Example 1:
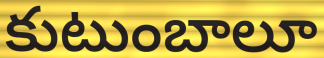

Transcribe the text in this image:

కుటుంబాలూ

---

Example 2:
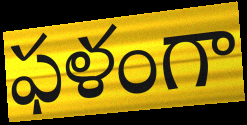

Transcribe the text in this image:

ఫళంగా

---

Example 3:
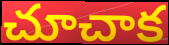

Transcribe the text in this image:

చూచాక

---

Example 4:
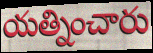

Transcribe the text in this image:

యత్నించారు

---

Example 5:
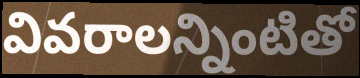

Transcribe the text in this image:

వివరాలన్నింటితో